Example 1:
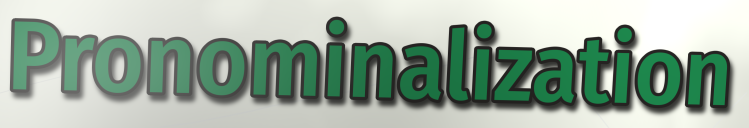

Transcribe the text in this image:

Pronominalization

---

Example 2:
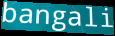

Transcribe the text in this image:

bangali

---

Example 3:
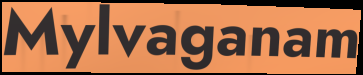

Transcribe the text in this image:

Mylvaganam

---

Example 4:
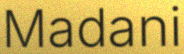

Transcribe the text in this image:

Madani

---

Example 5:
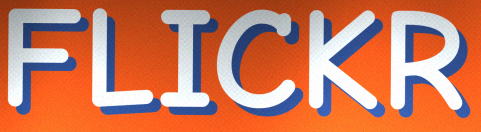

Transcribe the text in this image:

FLICKR